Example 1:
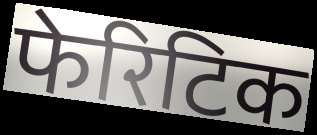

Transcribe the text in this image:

फेरिटिक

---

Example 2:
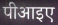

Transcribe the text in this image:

पीआइए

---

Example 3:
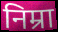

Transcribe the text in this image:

निम्रा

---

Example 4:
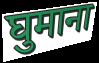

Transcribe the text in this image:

घुमाना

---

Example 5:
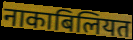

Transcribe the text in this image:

नाकाबिलियत